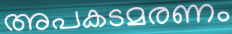
അപകടമരണം